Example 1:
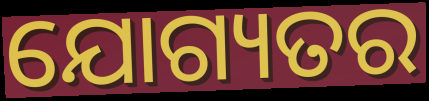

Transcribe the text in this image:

ଯୋଗ୍ୟତର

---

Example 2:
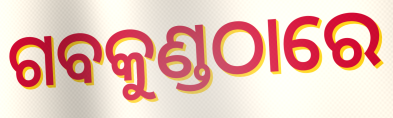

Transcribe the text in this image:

ଗବକୁଣ୍ଡଠାରେ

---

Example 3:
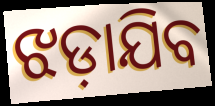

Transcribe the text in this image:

ଝଡ଼ାଯିବ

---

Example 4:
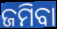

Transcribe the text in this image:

ଜମିବା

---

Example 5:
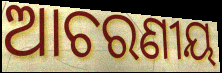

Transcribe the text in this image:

ଆଚରଣୀୟ